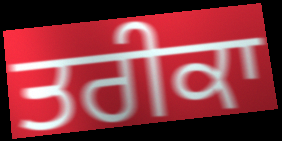
ਤਰੀਕਾ